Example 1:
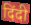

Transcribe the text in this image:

दिंदी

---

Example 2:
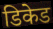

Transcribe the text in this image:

डिकेड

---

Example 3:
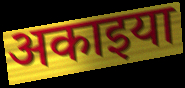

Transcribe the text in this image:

अकाइया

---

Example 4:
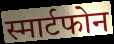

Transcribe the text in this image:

स्‍मार्टफोन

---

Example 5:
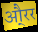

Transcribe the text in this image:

औ्रर